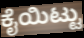
ಕೈಯಿಟ್ಟು